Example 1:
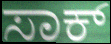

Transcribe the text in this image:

ಸಾಕ್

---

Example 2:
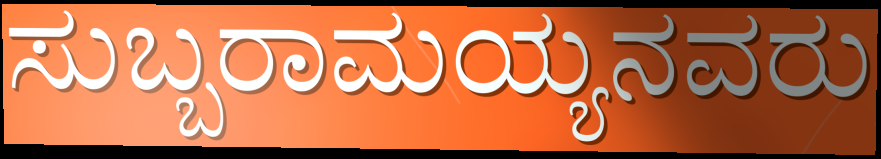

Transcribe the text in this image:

ಸುಬ್ಬರಾಮಯ್ಯನವರು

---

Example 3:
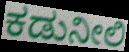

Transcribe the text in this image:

ಕಡುನೀಲಿ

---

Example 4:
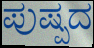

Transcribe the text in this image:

ಪುಷ್ಪದ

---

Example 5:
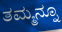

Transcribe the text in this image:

ತಮ್ಮನ್ನೂ